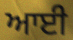
ਆਈ